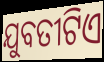
ଯୁବତୀଟିଏ